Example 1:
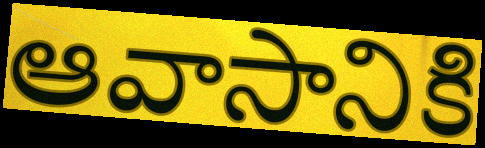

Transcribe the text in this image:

ఆవాసానికి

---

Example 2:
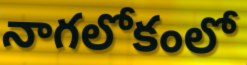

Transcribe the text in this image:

నాగలోకంలో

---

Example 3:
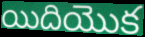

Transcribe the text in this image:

యిదియొక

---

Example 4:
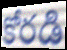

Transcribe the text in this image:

కోరడి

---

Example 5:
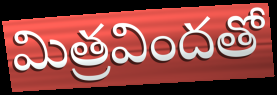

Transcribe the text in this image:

మిత్రవిందతో